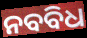
ନବବିଧ